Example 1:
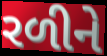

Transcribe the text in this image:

રળીને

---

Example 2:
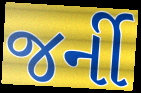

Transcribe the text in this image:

જર્ની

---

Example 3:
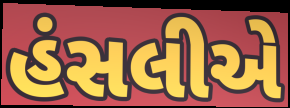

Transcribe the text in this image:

હંસલીએ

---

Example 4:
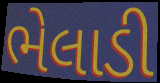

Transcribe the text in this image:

ભેલાડી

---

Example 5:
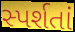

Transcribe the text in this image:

સ્પર્શતાં